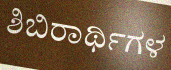
ಶಿಬಿರಾರ್ಥಿಗಳ